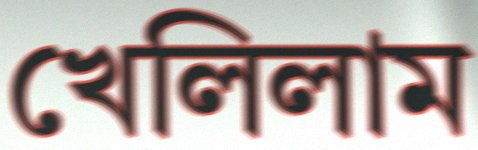
খেলিলাম